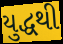
યુદ્ધથી